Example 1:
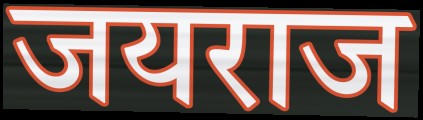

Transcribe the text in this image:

जयराज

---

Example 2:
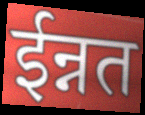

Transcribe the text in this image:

ईन्नत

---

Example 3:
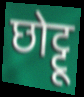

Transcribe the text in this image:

छोट्टू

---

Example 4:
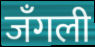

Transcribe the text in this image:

जँगली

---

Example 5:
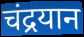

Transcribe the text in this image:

चंद्रयान